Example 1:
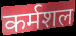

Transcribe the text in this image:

कर्मशल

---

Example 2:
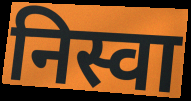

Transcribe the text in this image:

निस्वा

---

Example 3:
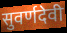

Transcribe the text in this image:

सुवर्णदेवी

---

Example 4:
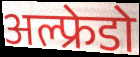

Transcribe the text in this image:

अल्फ्रेडो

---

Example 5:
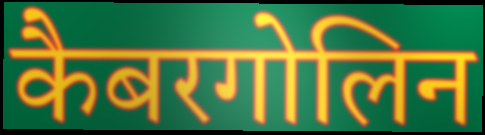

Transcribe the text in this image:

कैबरगोलिन